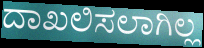
ದಾಖಲಿಸಲಾಗಿಲ್ಲ